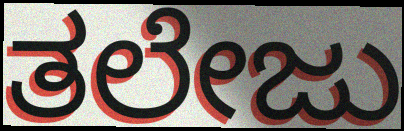
ತಲೇಜು